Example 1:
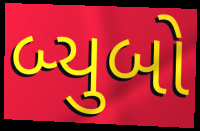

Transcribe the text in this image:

બ્યુબો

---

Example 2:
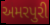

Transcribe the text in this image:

અમરપુરી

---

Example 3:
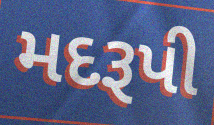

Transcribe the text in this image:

મદરૂપી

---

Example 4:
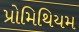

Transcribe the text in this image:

પ્રોમિથિયમ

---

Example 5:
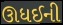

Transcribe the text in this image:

ઊધઈની